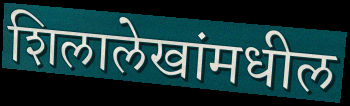
शिलालेखांमधील